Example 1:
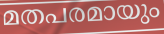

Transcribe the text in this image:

മതപരമായും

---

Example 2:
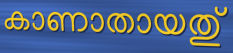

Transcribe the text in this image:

കാണാതായതു്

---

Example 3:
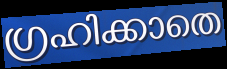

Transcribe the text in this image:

ഗ്രഹിക്കാതെ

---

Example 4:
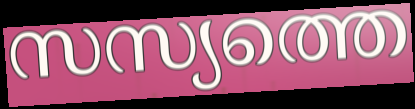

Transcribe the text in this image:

സസ്യത്തെ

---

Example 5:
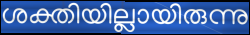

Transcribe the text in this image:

ശക്തിയില്ലായിരുന്നു